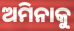
ଅମିନାକୁ